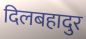
दिलबहादुर